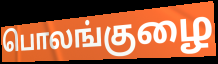
பொலங்குழை